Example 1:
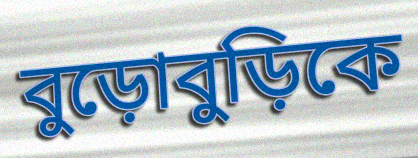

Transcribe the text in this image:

বুড়োবুড়িকে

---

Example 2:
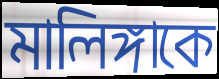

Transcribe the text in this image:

মালিঙ্গাকে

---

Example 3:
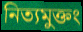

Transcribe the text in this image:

নিত্যমুক্তং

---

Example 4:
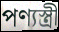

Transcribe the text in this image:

পণ্যস্ত্রী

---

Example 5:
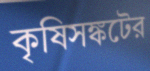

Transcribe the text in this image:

কৃষিসঙ্কটের